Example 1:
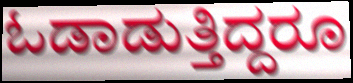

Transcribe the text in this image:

ಓಡಾಡುತ್ತಿದ್ದರೂ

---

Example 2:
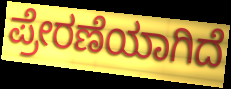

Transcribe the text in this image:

ಪ್ರೇರಣೆಯಾಗಿದೆ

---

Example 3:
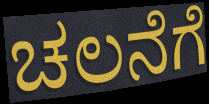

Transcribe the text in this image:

ಚಲನೆಗೆ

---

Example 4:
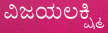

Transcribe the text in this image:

ವಿಜಯಲಕ್ಷ್ಮಿ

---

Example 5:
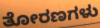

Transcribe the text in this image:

ತೋರಣಗಳು